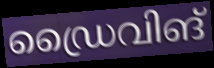
ഡ്രൈവിങ്